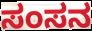
ಸಂಸನ